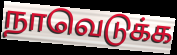
நாவெடுக்க